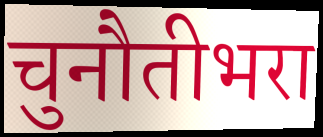
चुनौतीभरा